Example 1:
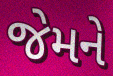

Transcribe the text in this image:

જેમને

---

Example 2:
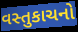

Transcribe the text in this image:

વસ્તુકાચનો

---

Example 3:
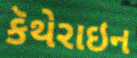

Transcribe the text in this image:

કૅથેરાઇન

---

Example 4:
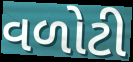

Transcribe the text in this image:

વળોટી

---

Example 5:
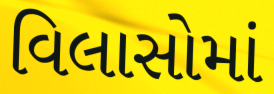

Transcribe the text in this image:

વિલાસોમાં